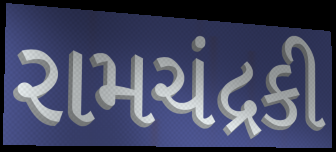
રામચંદ્રકી